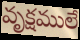
వృక్షములే